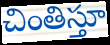
చింతిస్తూ